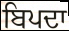
ਬਿਪਦਾ